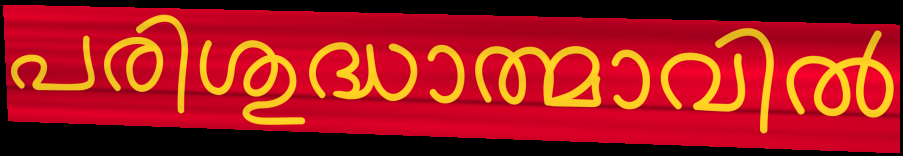
പരിശുദ്ധാത്മാവിൽ